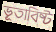
ভূতাবিষ্ট